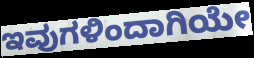
ಇವುಗಳಿಂದಾಗಿಯೇ